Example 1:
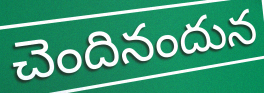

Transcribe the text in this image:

చెందినందున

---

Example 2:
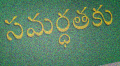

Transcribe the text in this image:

సమర్ధతకు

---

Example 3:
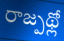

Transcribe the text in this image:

రాజ్పథ్లో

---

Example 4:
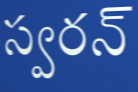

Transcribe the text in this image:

స్వరన్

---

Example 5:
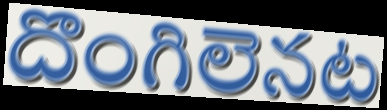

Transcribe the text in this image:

దొంగిలెనట